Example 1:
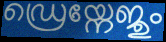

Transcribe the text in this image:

ഡ്രെയ്നേജും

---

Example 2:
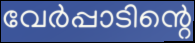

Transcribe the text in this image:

വേർപ്പാടിന്റെ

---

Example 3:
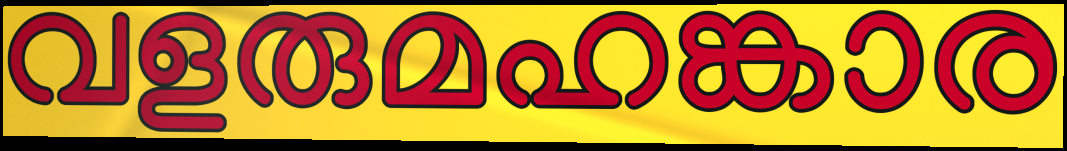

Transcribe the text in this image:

വളരുമഹങ്കാര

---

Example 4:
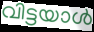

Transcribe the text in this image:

വിട്ടയാൾ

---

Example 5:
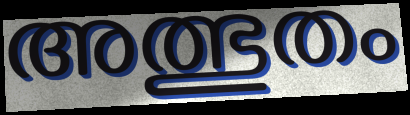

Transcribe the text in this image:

അത്ഭുതം